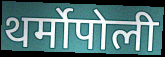
थर्मोपोली